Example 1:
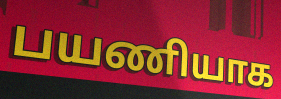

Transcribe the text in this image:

பயணியாக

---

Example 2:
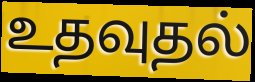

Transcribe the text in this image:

உதவுதல்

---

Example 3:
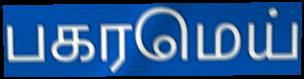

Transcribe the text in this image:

பகரமெய்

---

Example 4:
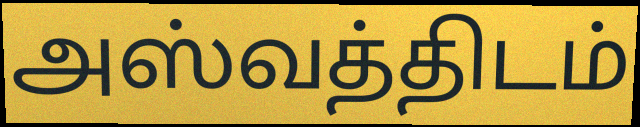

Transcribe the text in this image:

அஸ்வத்திடம்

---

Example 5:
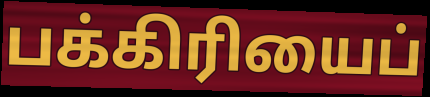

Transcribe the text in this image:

பக்கிரியைப்